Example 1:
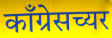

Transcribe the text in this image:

काँग्रेसच्यर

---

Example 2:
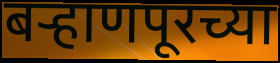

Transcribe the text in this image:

बऱ्हाणपूरच्या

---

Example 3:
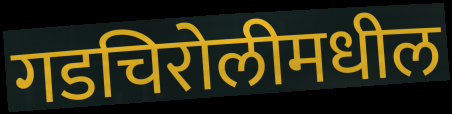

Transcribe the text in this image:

गडचिरोलीमधील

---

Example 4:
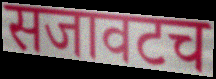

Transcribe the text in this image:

सजावटच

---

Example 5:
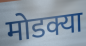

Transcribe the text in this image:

मोडक्या